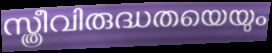
സ്ത്രീവിരുദ്ധതയെയും